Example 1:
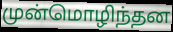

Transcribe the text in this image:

முன்மொழிந்தன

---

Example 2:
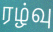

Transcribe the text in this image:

ரழ்வு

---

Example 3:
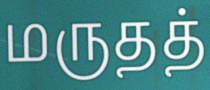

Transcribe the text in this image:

மருதத்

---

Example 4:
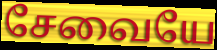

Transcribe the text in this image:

சேவையே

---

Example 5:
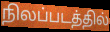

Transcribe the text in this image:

நிலப்படத்தில்